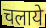
चलाये